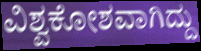
ವಿಶ್ವಕೋಶವಾಗಿದ್ದು